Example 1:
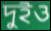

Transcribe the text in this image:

দুইও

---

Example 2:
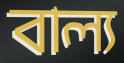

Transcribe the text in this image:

বাল্য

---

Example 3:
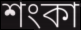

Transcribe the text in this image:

শংকা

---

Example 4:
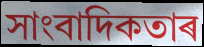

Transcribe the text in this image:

সাংবাদিকতাৰ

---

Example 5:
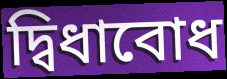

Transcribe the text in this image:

দ্বিধাবোধ